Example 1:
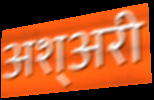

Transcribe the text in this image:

अश्अरी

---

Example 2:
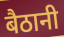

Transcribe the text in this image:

बैठानी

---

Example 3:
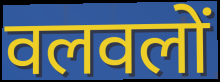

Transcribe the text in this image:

वलवलों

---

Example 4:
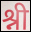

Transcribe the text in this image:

श्नी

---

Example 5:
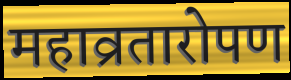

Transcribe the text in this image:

महाव्रतारोपण